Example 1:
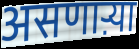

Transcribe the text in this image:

असणाऱ्‍या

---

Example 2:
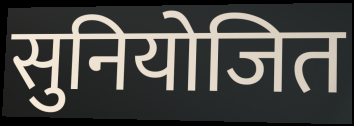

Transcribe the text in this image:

सुनियोजित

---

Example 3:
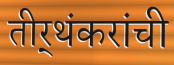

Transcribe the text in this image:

तीर्थंकरांची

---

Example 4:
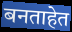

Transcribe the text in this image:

बनताहेत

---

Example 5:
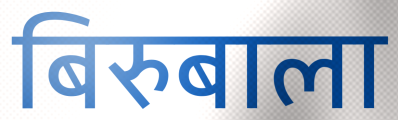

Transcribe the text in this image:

बिरुबाला